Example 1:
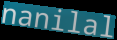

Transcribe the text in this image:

nanilal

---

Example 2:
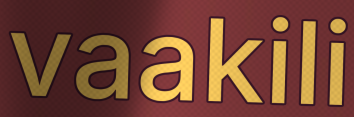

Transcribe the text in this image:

vaakili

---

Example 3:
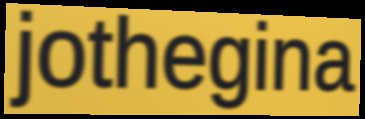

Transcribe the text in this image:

jothegina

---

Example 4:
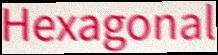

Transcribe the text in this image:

Hexagonal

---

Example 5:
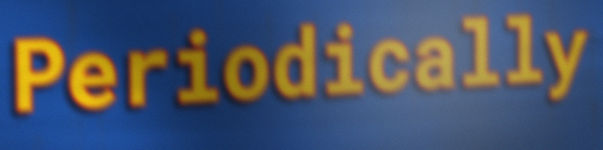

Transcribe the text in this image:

Periodically